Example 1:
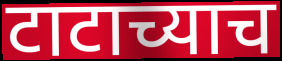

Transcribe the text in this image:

टाटाच्याच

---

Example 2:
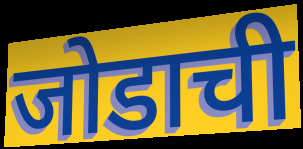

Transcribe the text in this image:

जोडाची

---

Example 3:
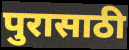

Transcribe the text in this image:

पुरासाठी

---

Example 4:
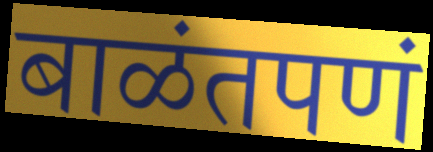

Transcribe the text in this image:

बाळंतपणं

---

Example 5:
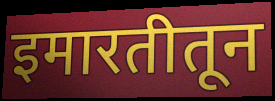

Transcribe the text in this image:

इमारतीतून